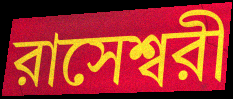
রাসেশ্বরী